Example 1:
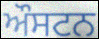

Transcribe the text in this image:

ਔਸਟਨ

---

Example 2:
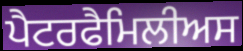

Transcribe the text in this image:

ਪੈਟਰਫੈਮਿਲੀਅਸ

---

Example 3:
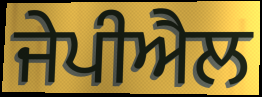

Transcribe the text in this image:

ਜੇਪੀਐਲ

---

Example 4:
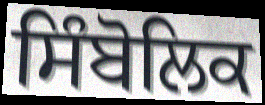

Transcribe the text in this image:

ਸਿੰਬੋਲਿਕ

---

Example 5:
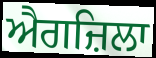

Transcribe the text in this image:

ਐਗਜ਼ਿਲਾ